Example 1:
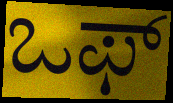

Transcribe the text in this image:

ಒಫ್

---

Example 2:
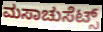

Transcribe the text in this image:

ಮಸಾಚುಸೆಟ್ಸ್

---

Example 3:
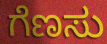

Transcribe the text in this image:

ಗೆಣಸು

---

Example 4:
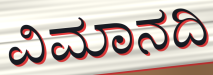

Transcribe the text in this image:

ವಿಮಾನದಿ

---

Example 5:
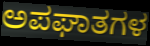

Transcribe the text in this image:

ಅಪಘಾತಗಳ